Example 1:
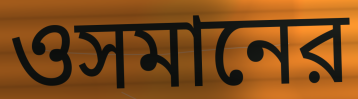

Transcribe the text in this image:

ওসমানের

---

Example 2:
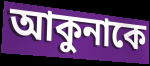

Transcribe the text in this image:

আকুনাকে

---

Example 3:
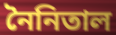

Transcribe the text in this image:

নৈনিতাল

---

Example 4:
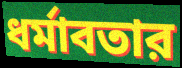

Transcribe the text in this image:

ধর্মাবতার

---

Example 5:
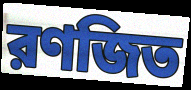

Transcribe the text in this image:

রণজিত